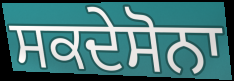
ਸਕਦੇਸੋਨਾ